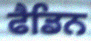
ਫੈਡਿਨ